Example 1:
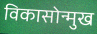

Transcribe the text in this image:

विकासोन्मुख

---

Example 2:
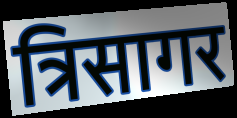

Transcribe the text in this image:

त्रिसागर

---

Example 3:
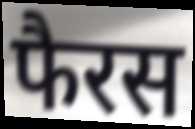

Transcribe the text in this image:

फैरस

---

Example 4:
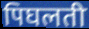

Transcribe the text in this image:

पिघलती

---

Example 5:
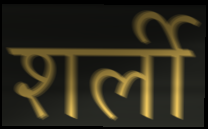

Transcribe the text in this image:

शर्ली